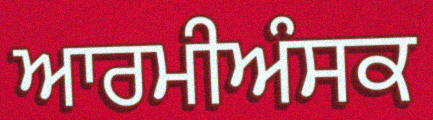
ਆਰਮੀਅੰਸਕ